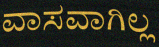
ವಾಸವಾಗಿಲ್ಲ